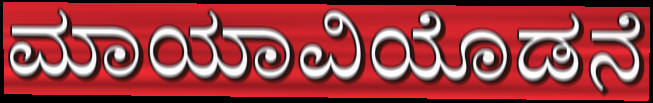
ಮಾಯಾವಿಯೊಡನೆ